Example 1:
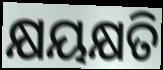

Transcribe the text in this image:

କ୍ଷୟକ୍ଷତି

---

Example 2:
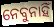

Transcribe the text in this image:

ନେବୁନାହିଁ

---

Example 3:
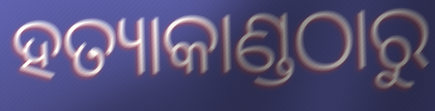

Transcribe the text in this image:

ହତ୍ୟାକାଣ୍ଡଠାରୁ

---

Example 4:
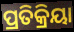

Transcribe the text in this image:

ପ୍ରତିକ୍ରିୟା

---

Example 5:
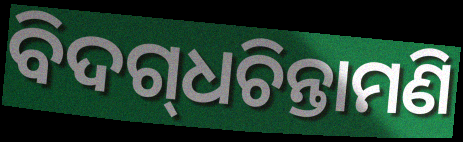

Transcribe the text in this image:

ବିଦଗ୍‌ଧଚିନ୍ତାମଣି